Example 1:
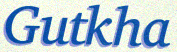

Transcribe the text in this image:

Gutkha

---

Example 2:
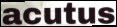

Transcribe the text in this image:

acutus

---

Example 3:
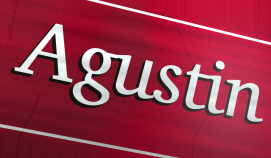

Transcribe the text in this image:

Agustin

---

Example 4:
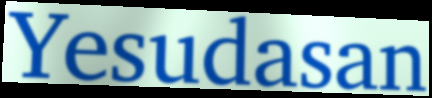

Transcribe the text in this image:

Yesudasan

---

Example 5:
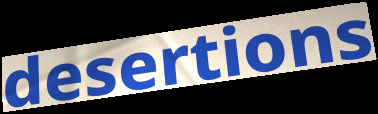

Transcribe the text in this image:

desertions